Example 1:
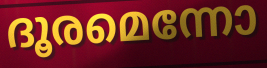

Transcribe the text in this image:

ദൂരമെന്നോ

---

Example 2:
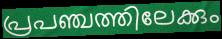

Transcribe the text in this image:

പ്രപഞ്ചത്തിലേക്കും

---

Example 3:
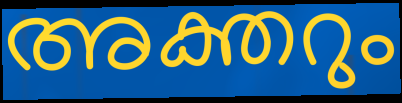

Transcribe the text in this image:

അക്തറും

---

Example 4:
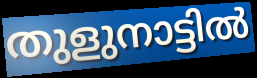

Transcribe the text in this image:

തുളുനാട്ടിൽ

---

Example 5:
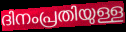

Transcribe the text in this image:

ദിനംപ്രതിയുള്ള